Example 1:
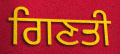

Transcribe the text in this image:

ਗਿਣਤੀ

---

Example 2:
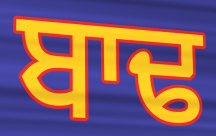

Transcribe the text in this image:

ਬਾਢ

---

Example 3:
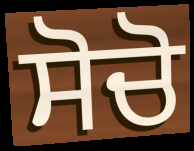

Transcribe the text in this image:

ਸੋਚੋ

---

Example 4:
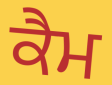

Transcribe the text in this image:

ਕੈਮ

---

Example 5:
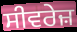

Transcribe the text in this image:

ਸੀਵਰੇਜ਼